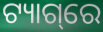
ଟ୍ୟାଗ୍‌ରେ